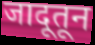
जादूतून